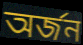
অৰ্জন